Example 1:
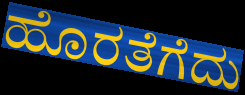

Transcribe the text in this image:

ಹೊರತೆಗೆದು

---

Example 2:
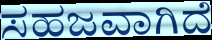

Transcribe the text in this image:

ಸಹಜವಾಗಿದೆ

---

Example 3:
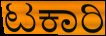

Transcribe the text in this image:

ಟಕಾರಿ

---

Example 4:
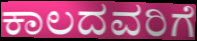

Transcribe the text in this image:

ಕಾಲದವರಿಗೆ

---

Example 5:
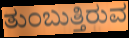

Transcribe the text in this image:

ತುಂಬುತ್ತಿರುವ